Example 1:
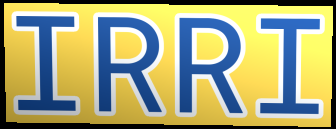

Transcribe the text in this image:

IRRI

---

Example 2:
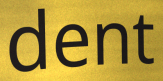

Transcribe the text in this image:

dent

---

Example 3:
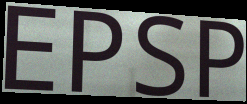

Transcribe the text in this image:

EPSP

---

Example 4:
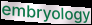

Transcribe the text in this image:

embryology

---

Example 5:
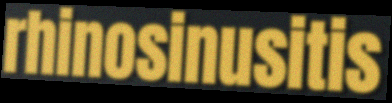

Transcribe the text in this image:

rhinosinusitis